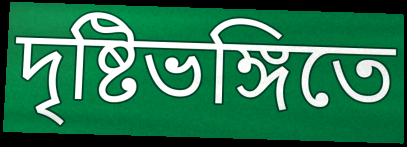
দৃষ্টিভঙ্গিতে